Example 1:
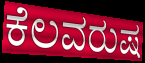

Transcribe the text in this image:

ಕೆಲವರುಷ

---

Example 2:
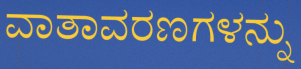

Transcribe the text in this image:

ವಾತಾವರಣಗಳನ್ನು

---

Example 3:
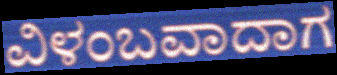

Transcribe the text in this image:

ವಿಳಂಬವಾದಾಗ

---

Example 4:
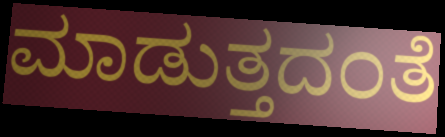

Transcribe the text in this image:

ಮಾಡುತ್ತದಂತೆ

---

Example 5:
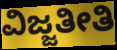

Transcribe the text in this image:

ವಿಜ್ಜತೀತಿ